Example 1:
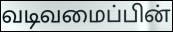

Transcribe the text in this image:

வடிவமைப்பின்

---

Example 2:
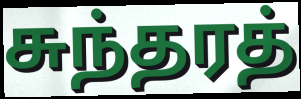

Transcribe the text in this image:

சுந்தரத்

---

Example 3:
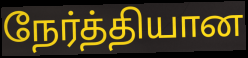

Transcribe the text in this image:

நேர்த்தியான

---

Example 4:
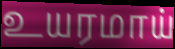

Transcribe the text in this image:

உயரமாய்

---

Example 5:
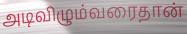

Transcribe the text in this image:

அடிவிழும்வரைதான்